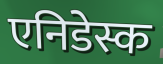
एनिडेस्क